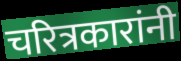
चरित्रकारांनी